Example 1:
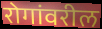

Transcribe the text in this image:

रोगांवरील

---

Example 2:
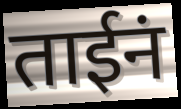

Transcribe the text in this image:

ताईनं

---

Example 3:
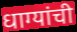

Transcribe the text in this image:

धाग्यांची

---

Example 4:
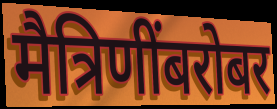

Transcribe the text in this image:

मैत्रिणींबरोबर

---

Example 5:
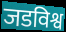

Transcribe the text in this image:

जडविश्व